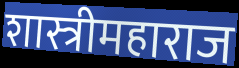
शास्त्रीमहाराज